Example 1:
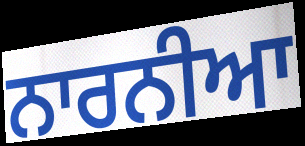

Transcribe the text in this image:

ਨਾਰਨੀਆ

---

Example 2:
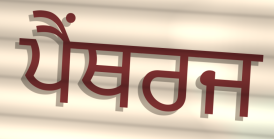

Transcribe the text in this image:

ਪੈਂਥਰਜ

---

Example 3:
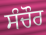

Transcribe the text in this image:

ਸੰਚੌਰ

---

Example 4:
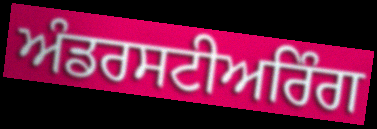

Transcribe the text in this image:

ਅੰਡਰਸਟੀਅਰਿੰਗ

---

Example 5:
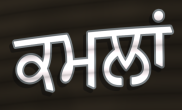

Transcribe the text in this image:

ਕਮਲਾਂ